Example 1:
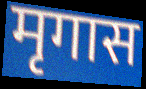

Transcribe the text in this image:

मृगास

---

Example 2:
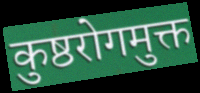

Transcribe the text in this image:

कुष्ठरोगमुक्त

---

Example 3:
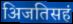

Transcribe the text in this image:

अिजतिसहं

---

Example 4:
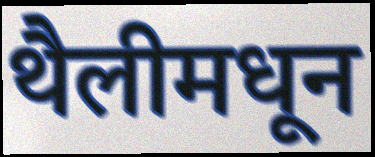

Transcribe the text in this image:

थैलीमधून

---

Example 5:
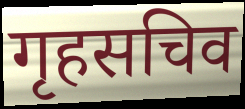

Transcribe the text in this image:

गृहसचिव